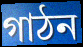
গাঠন